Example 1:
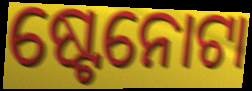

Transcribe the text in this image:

ଷ୍ଟେନୋଟା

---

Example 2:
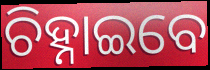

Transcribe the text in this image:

ଚିହ୍ନାଇବେ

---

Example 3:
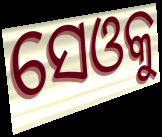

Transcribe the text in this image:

ସେଓକୁ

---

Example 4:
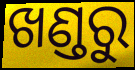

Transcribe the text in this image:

ଖଣ୍ଡରୁ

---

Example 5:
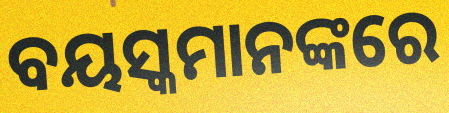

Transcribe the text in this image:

ବୟସ୍କମାନଙ୍କରେ